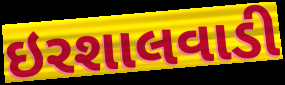
ઇરશાલવાડી